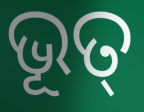
ଭୂତ୍